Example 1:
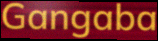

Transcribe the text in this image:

Gangaba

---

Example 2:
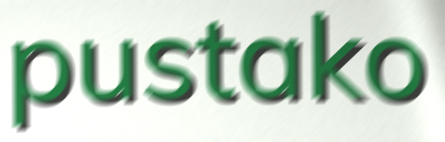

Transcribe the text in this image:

pustako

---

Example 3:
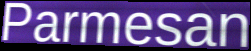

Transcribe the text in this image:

Parmesan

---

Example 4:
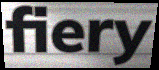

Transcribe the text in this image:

fiery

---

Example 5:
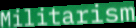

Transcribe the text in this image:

Militarism